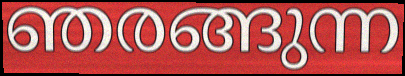
ഞരങ്ങുന്ന